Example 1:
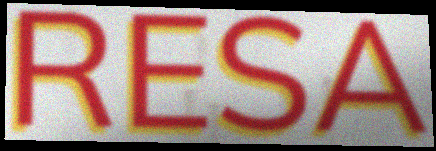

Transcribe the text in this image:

RESA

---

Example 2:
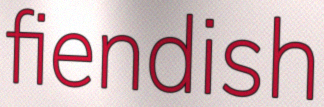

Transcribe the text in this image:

fiendish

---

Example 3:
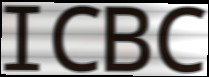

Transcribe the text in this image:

ICBC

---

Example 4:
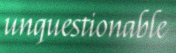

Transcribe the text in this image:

unquestionable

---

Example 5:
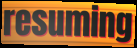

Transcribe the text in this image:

resuming